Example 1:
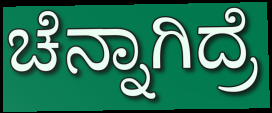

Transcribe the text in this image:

ಚೆನ್ನಾಗಿದ್ರೆ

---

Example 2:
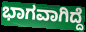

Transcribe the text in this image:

ಭಾಗವಾಗಿದ್ದೆ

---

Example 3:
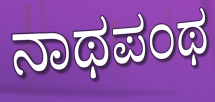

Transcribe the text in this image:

ನಾಥಪಂಥ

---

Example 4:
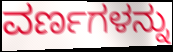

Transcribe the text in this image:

ವರ್ಣಗಳನ್ನು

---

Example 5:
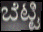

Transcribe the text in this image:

ಬೆಟ್ಟಿ